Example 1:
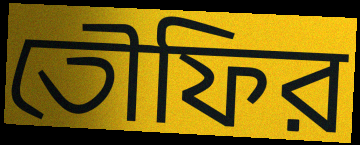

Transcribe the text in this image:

তৌফির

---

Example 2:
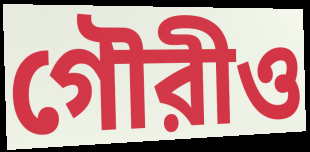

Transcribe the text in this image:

গৌরীও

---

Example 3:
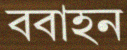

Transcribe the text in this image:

ববাহন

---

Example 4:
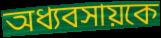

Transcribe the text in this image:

অধ্যবসায়কে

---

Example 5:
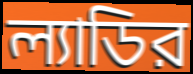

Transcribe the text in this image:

ল্যাডির